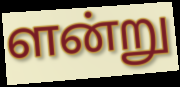
ளன்று